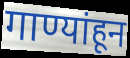
गाण्यांहून